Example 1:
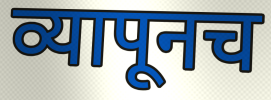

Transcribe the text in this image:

व्यापूनच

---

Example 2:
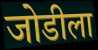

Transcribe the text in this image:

जोडीला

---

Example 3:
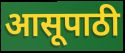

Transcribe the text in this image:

आसूपाठी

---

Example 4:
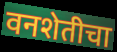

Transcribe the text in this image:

वनशेतीचा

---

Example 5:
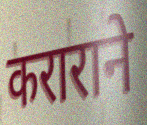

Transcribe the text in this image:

कराराने